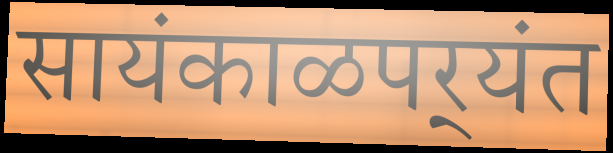
सायंकाळपर्यंत